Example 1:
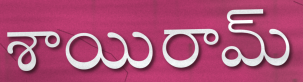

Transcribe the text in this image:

శాయిరామ్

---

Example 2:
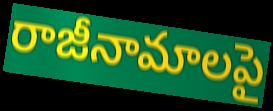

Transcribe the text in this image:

రాజీనామాలపై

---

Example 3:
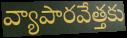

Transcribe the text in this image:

వ్యాపారవేత్తకు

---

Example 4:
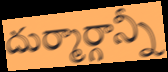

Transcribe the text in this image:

దుర్మార్గాన్నీ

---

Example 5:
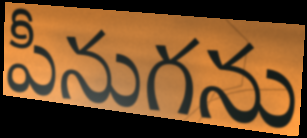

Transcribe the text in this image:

పీనుగను